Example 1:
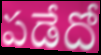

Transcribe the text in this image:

పడేదో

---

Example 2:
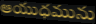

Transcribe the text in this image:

ఆయుధమును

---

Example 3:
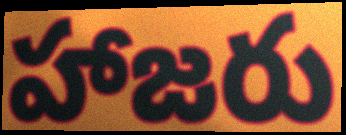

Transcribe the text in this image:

హాజరు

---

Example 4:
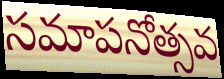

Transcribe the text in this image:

సమాపనోత్సవ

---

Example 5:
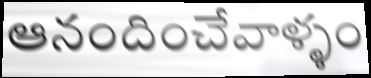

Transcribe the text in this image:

ఆనందించేవాళ్ళం